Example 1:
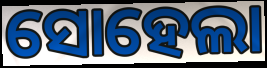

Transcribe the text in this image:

ସୋହେଲା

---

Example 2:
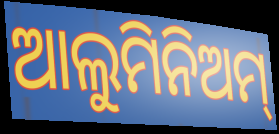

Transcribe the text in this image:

ଆଲୁମିନିଅମ୍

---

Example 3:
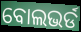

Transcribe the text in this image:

ବୋଲଭର୍ଡ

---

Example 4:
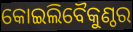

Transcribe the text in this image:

କୋଇଲିବୈକୁଣ୍ଠର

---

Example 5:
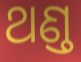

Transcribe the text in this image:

ଥଣ୍ଡ